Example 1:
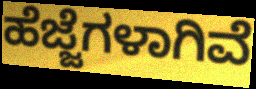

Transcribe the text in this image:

ಹೆಜ್ಜೆಗಳಾಗಿವೆ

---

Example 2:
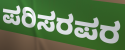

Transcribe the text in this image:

ಪರಿಸರಪರ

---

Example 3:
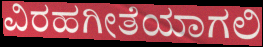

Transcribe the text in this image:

ವಿರಹಗೀತೆಯಾಗಲಿ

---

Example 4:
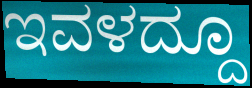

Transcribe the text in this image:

ಇವಳದ್ದೂ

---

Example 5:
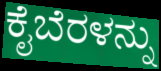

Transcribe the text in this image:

ಕೈಬೆರಳನ್ನು